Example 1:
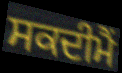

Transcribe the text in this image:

ਸਕਦੀਮੈਂ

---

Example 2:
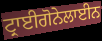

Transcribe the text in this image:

ਟ੍ਰਾਈਗੋਨੇਲਾਈਨ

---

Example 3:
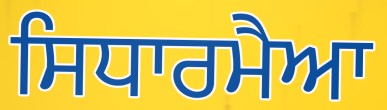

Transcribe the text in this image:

ਸਿਧਾਰਮੈਆ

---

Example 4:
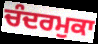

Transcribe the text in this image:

ਚੰਦਰਮੁਕਾ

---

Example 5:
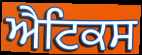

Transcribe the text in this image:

ਐਟਿਕਸ